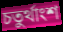
চতুর্থাংশ